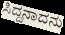
ಸಿದ್ದನಾದನು